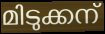
മിടുക്കന്